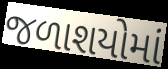
જળાશયોમાં